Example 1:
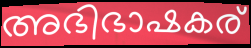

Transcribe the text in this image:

അഭിഭാഷകര്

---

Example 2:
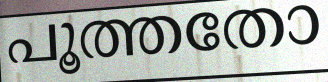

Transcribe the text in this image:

പൂത്തതോ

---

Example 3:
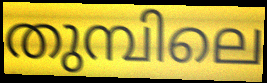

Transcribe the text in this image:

തുമ്പിലെ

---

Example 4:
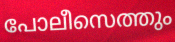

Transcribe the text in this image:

പോലീസെത്തും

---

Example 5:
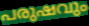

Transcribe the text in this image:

പരുഷവും